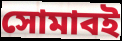
সোমাবই